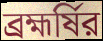
ব্রহ্মর্ষির